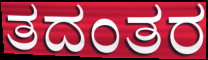
ತದಂತರ